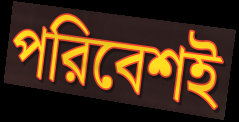
পরিবেশই